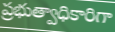
ప్రభుత్వాధికారిగా